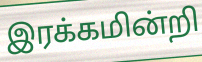
இரக்கமின்றி